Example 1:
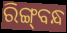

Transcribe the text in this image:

ରିଙ୍ଗ୍‌ବନ୍ଧ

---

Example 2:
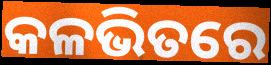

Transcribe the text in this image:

କଳଭିତରେ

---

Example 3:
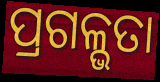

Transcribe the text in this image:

ପ୍ରଗଳ୍ଭତା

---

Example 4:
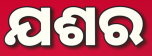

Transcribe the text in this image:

ଯଶର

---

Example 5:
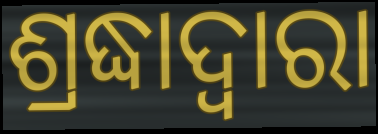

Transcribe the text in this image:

ଶ୍ରଦ୍ଧାଦ୍ୱାରା